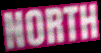
NORTH